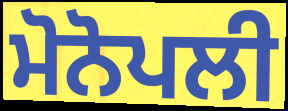
ਮੋਨੋਪਲੀ